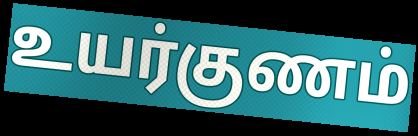
உயர்குணம்